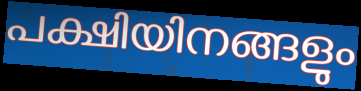
പക്ഷിയിനങ്ങളും